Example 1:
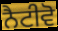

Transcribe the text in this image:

ਨੈਟੀਵੋ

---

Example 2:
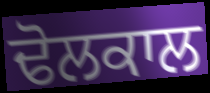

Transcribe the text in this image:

ਢੋਲਕਾਲ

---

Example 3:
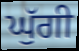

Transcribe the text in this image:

ਘੁੱਗੀ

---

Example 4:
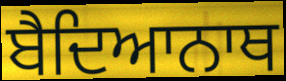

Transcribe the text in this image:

ਬੈਦਿਆਨਾਥ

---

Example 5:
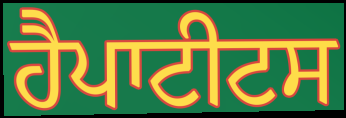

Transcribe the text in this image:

ਹੈਪਾਟੀਟਸ